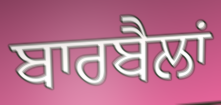
ਬਾਰਬੈਲਾਂ